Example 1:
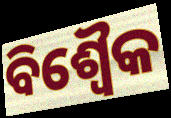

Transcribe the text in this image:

ବିଶ୍ୱୈକ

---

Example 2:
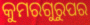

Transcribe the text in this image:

କୁମରଗୁରୁପର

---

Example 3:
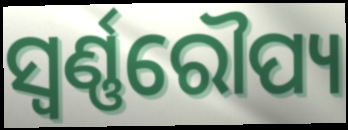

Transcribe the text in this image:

ସ୍ୱର୍ଣ୍ଣରୌପ୍ୟ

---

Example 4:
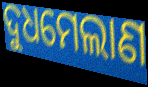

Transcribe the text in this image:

ଦୁଧମେଲାଣ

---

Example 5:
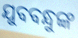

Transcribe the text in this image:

ଯୁବବନ୍ଧୁଙ୍କ